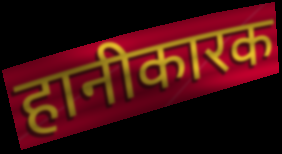
हानीकारक